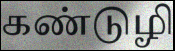
கண்டுழி